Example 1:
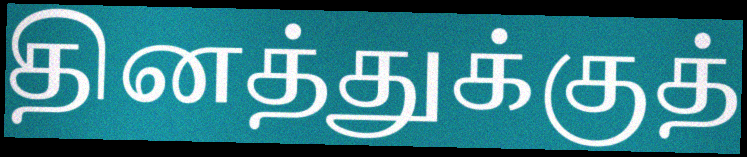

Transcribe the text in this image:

தினத்துக்குத்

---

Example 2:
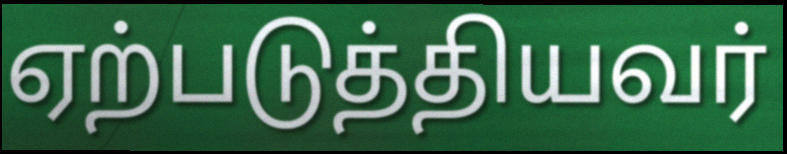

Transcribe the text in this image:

ஏற்படுத்தியவர்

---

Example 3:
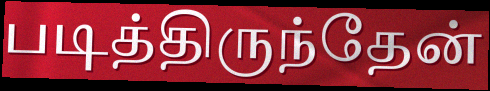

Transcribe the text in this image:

படித்திருந்தேன்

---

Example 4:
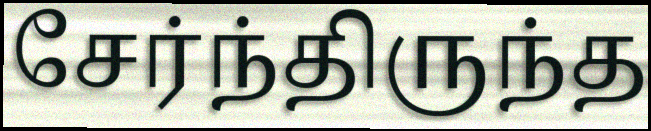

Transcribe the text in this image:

சேர்ந்திருந்த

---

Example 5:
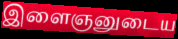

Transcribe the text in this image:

இளைஞனுடைய